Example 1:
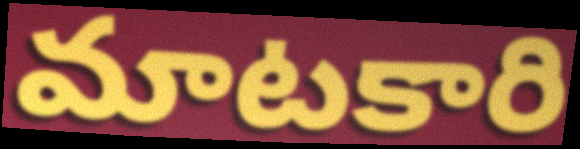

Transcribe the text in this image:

మాటకారి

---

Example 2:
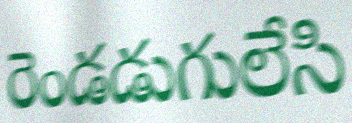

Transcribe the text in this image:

రెండడుగులేసి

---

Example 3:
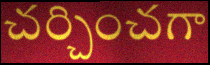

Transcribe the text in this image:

చర్చించగా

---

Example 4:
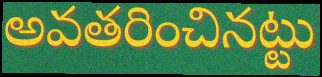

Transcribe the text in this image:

అవతరించినట్టు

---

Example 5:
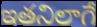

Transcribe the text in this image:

ఇతనిలాగే